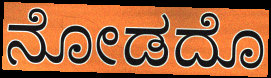
ನೋಡದೊ